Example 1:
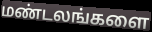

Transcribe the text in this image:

மண்டலங்களை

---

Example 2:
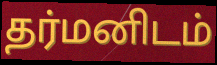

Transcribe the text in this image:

தர்மனிடம்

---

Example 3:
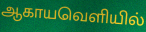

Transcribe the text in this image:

ஆகாயவெளியில்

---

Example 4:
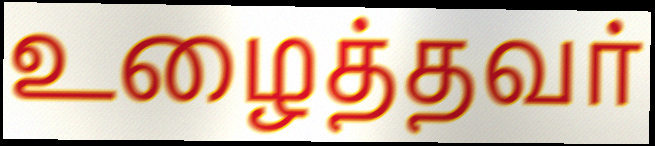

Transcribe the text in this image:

உழைத்தவர்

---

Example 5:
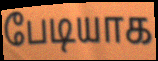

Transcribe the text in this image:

பேடியாக